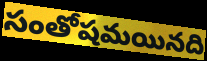
సంతోషమయినది